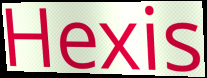
Hexis